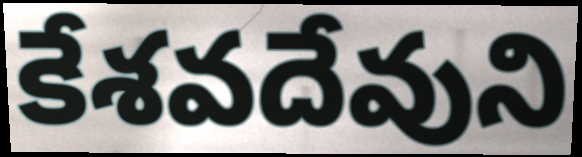
కేశవదేవుని